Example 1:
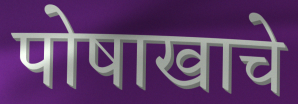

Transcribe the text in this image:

पोषाखाचे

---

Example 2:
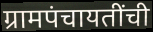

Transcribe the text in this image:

ग्रामपंचायतींची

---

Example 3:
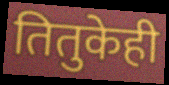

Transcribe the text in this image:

तितुकेही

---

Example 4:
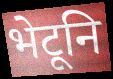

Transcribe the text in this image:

भेटूनि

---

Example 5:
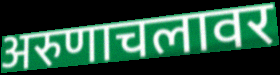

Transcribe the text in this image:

अरुणाचलावर